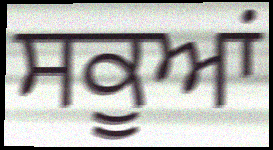
ਸਕੂਆਂ